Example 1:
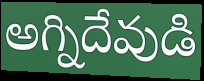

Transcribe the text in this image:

అగ్నిదేవుడి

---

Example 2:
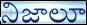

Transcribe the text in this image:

నిజాలూ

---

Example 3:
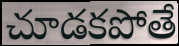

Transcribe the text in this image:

చూడకపోతే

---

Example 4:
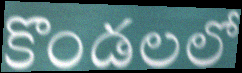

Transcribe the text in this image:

కొండలలో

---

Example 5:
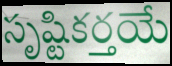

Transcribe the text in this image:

సృష్టికర్తయే